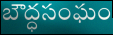
బౌద్ధసంఘం